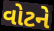
વોટને